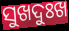
ସୁଖଦୁଃଖ